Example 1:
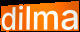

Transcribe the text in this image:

dilma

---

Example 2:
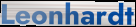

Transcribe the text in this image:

Leonhardt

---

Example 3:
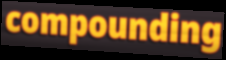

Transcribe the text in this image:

compounding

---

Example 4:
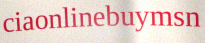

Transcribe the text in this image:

ciaonlinebuymsn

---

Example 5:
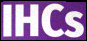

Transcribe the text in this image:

IHCs